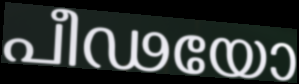
പീഢയോ